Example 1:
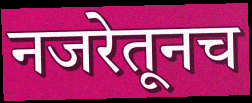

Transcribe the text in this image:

नजरेतूनच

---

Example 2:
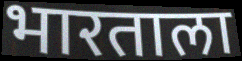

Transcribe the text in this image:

भारताला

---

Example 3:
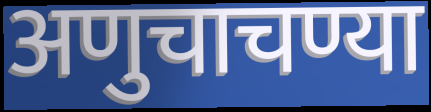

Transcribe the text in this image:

अणुचाचण्या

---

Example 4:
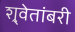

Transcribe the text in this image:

श्र्वेतांबरी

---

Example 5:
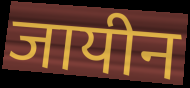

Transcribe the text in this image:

जायीन